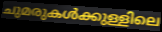
ചുമരുകൾക്കുള്ളിലെ